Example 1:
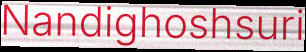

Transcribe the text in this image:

Nandighoshsuri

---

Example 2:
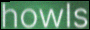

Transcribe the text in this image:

howls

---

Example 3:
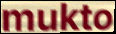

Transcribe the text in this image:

mukto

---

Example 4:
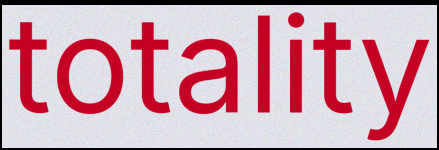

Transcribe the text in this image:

totality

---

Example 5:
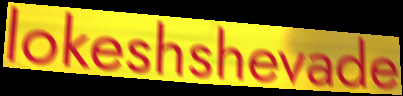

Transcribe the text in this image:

lokeshshevade